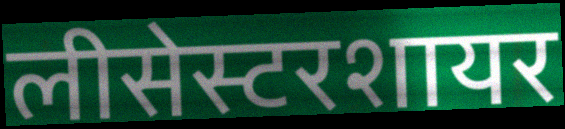
लीसेस्टरशायर